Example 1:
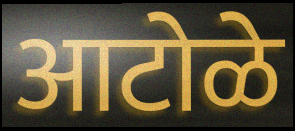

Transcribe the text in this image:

आटोळे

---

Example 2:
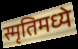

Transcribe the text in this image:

स्मृतिमध्ये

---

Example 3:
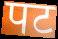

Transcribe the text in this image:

पट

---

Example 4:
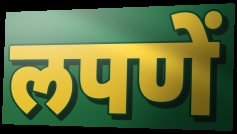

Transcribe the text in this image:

लपणें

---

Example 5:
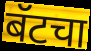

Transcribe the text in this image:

बॅटचा